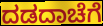
ದಡದಾಚೆಗೆ